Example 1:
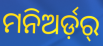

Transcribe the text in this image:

ମନିଅର୍ଡ଼ର୍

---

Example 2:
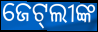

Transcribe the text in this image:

ଜେଟ୍‌ଲୀଙ୍କ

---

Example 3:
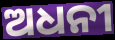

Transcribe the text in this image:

ଅଧନୀ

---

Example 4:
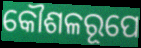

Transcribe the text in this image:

କୌଶଳରୂପେ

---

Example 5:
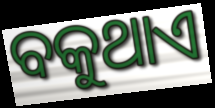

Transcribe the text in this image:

ବକୁଥାଏ